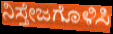
ನಿಸ್ತೇಜಗೊಳಿಸಿ